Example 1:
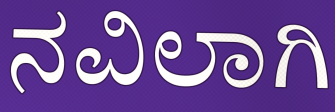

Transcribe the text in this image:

ನವಿಲಾಗಿ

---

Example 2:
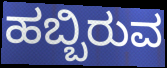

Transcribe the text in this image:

ಹಬ್ಬಿರುವ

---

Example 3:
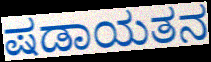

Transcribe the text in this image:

ಷಡಾಯತನ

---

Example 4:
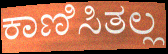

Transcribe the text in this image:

ಕಾಣಿಸಿತಲ್ಲ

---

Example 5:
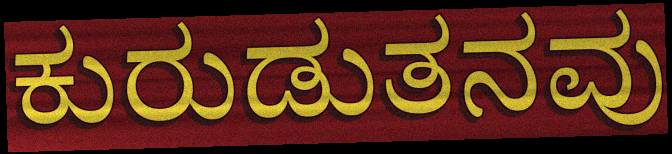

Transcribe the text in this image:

ಕುರುಡುತನವು